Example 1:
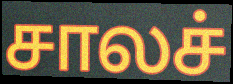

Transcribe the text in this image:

சாலச்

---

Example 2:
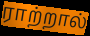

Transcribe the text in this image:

ராற்றால்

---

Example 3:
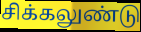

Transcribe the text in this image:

சிக்கலுண்டு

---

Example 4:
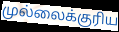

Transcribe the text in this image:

முல்லைக்குரிய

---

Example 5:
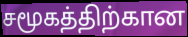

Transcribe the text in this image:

சமூகத்திற்கான